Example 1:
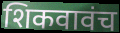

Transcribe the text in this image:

शिकवावंच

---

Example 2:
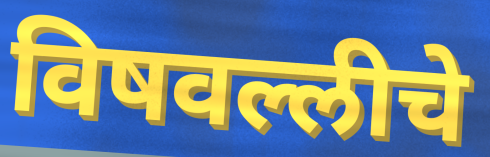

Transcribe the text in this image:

विषवल्लीचे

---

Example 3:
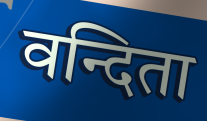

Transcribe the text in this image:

वन्दिता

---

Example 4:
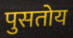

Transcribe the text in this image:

पुसतोय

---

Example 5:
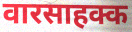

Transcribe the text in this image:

वारसाहक्क